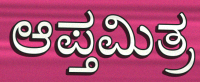
ಆಪ್ತಮಿತ್ರ